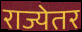
राज्येतर